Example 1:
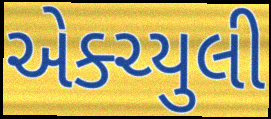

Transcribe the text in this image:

એક્ચ્યુલી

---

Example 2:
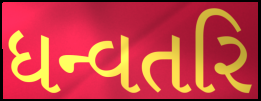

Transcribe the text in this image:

ધન્વતરિ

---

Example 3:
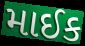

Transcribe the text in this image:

માઈક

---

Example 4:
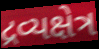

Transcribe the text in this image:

દ્રવ્યક્ષેત્ર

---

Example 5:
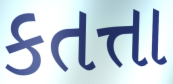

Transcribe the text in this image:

કતત્તા